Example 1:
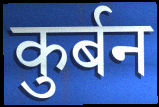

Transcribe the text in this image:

कुर्बन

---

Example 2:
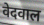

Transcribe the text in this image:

वेदवाल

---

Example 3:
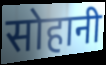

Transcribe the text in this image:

सोहानी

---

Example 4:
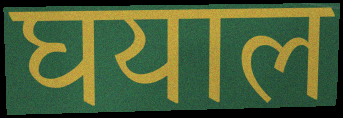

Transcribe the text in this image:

घयाल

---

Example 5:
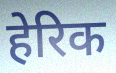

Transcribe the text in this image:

हेरिक